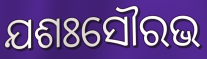
ଯଶଃସୌରଭ